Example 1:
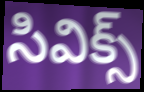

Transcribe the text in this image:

సివిక్స్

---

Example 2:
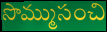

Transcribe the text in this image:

సొమ్ముసంచి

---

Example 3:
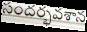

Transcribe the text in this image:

సందర్భవశాన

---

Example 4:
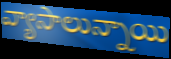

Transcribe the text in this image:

వ్యాసాలున్నాయి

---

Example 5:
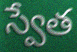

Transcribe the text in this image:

స్వేత